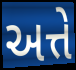
અત્તે